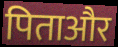
पिताऔर